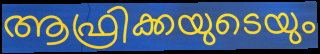
ആഫ്രിക്കയുടെയും